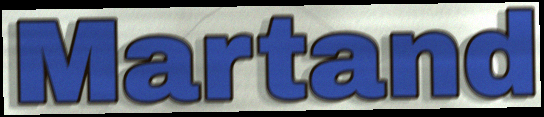
Martand